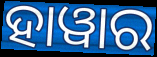
ହାୱାର